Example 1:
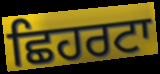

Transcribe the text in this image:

ਛਿਹਰਟਾ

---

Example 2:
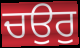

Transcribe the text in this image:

ਚਉਰੁ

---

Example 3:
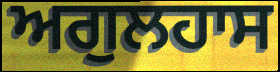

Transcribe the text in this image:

ਅਗੁਲਹਾਸ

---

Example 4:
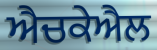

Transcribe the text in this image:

ਐਚਕੇਐਲ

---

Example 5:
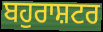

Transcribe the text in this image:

ਬਹੁਰਾਸ਼ਟਰ